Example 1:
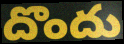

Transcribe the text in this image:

దొందు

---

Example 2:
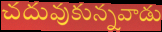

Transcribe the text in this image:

చదువుకున్నవాడు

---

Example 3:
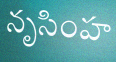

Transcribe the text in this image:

నృసింహ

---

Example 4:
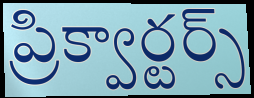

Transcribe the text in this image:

ప్రిక్వార్టర్స్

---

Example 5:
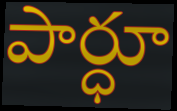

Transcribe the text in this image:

పార్ధూ